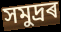
সমুদ্ৰৰ